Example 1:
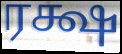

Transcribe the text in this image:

ரக்ஷ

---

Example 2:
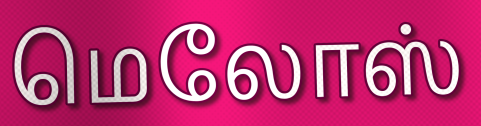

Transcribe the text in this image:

மெலோஸ்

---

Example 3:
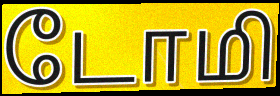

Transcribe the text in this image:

டோமி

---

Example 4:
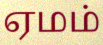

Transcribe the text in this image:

ஏமம்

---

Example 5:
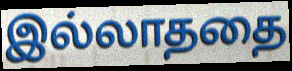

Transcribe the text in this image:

இல்லாததை